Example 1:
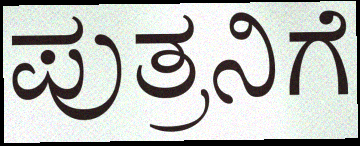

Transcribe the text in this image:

ಪುತ್ರನಿಗೆ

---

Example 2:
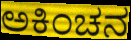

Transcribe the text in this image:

ಅಕಿಂಚನ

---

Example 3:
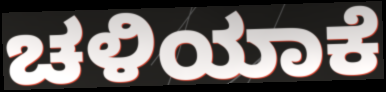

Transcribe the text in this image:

ಚಳಿಯಾಕೆ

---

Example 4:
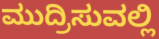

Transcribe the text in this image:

ಮುದ್ರಿಸುವಲ್ಲಿ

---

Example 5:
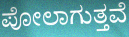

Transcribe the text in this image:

ಪೋಲಾಗುತ್ತವೆ